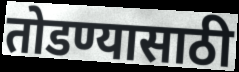
तोडण्यासाठी